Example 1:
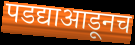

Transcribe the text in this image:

पडद्याआडूनच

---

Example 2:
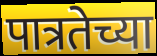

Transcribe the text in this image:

पात्रतेच्या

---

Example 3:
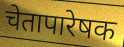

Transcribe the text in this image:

चेतापारेषक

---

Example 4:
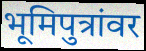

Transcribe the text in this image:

भूमिपुत्रांवर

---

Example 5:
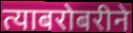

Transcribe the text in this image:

त्याबरोबरीने